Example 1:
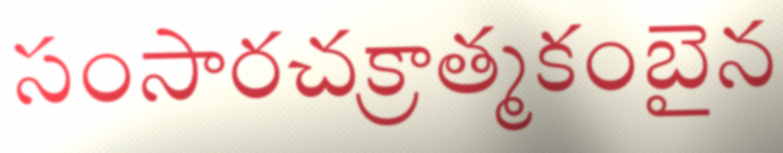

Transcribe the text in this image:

సంసారచక్రాత్మకంబైన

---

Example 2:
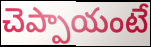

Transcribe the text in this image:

చెప్పాయంటే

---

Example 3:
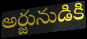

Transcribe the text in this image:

అర్జునుడికి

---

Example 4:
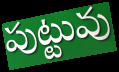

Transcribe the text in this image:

పుట్టువు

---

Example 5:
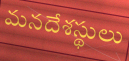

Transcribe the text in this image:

మనదేశస్థులు